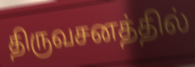
திருவசனத்தில்